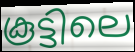
കൂട്ടിലെ